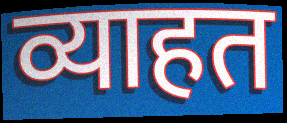
व्याहत